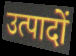
उत्पादों